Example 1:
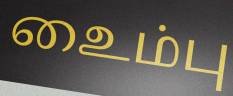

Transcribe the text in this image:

உைம்பு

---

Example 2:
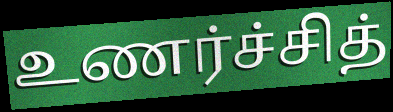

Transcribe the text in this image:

உணர்ச்சித்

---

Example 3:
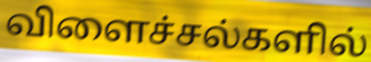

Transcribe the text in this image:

விளைச்சல்களில்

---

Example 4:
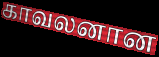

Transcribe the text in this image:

காவலனான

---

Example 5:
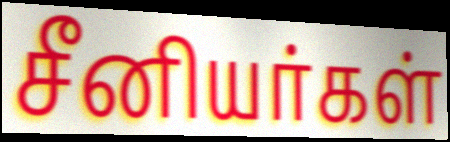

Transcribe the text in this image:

சீனியர்கள்